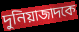
দুনিয়াজাদকে